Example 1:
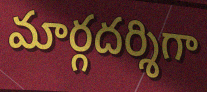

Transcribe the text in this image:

మార్గదర్శిగా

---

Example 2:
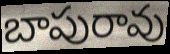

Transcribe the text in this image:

బాపురావు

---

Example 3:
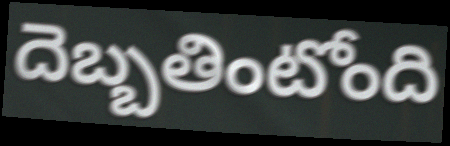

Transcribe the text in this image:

దెబ్బతింటోంది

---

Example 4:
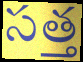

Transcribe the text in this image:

సత్త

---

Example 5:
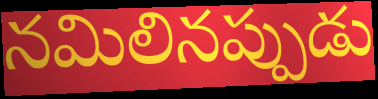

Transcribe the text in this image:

నమిలినప్పుడు